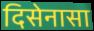
दिसेनासा